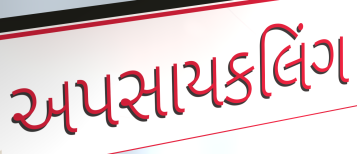
અપસાયકલિંગ